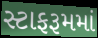
સ્ટાફરૂમમાં